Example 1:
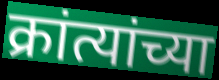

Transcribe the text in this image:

क्रांत्यांच्या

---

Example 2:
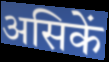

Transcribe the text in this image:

असिकें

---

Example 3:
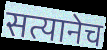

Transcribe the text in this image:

सत्यानेच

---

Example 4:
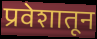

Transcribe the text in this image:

प्रवेशातून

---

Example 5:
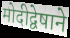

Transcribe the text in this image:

मोदीद्वेषाने